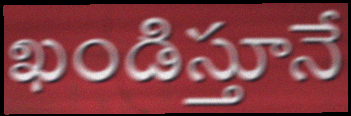
ఖండిస్తూనే